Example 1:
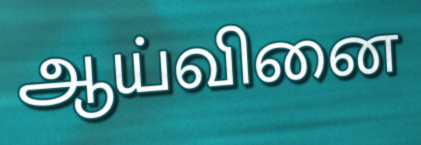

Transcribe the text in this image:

ஆய்வினை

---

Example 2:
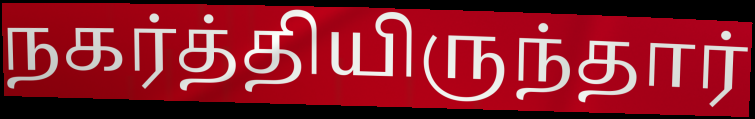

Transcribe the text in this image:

நகர்த்தியிருந்தார்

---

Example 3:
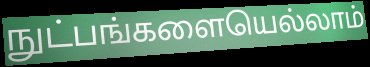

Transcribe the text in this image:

நுட்பங்களையெல்லாம்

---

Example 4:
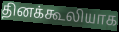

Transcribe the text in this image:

தினக்கூலியாக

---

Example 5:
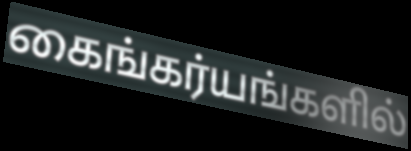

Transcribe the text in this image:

கைங்கர்யங்களில்